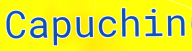
Capuchin